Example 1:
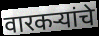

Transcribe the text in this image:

वारकऱ्यांचे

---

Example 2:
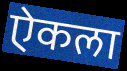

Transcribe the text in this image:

ऐकला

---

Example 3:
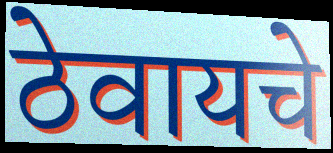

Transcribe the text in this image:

ठेवायचे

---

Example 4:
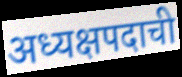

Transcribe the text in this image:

अध्यक्षपदाची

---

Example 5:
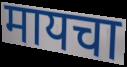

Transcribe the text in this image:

मायचा